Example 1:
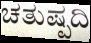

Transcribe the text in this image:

ಚತುಷ್ಪದಿ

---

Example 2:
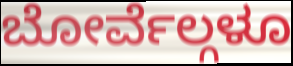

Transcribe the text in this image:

ಬೋರ್ವೆಲ್ಗಳೂ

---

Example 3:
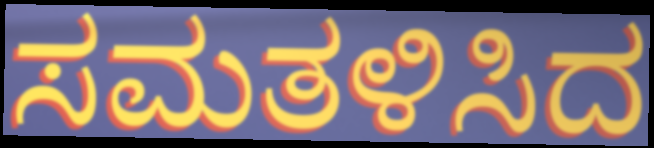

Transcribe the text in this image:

ಸಮತಳಿಸಿದ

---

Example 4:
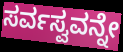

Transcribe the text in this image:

ಸರ್ವಸ್ವವನ್ನೇ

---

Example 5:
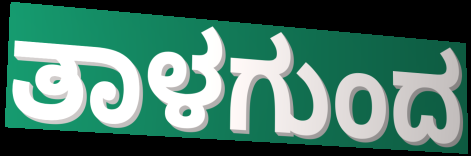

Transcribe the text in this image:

ತಾಳಗುಂದ